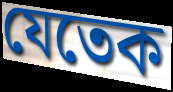
যেতেক